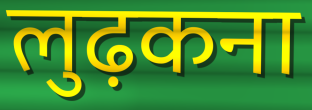
लुढ़कना